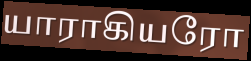
யாராகியரோ